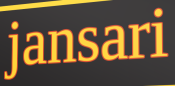
jansari